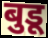
बुडू